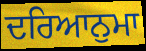
ਦਰਿਆਨੁਮਾ